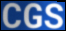
CGS